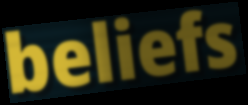
beliefs